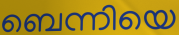
ബെന്നിയെ